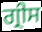
ਗ੍ਰੀਸ